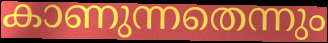
കാണുന്നതെന്നും